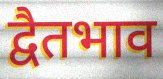
द्वैतभाव